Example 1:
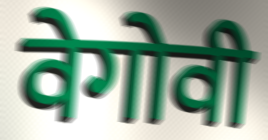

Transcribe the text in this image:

वेगोवी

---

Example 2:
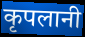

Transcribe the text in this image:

कृपलानी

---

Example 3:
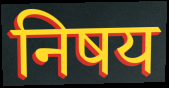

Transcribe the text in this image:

निषय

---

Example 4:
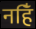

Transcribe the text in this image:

नहिँ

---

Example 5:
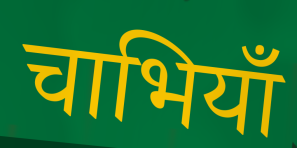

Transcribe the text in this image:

चाभियाँ